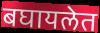
बघायलेत